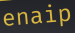
enaip